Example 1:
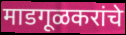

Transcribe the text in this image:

माडगूळकरांचे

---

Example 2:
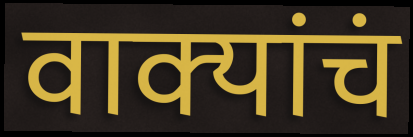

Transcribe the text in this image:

वाक्यांचं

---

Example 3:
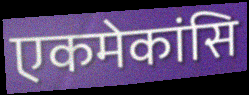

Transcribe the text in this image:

एकमेकांसि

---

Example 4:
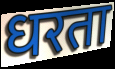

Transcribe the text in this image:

धरता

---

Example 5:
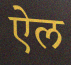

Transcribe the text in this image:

ऐल